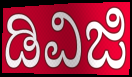
ಡಿವಿಜಿ